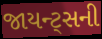
જાયન્ટ્સની